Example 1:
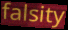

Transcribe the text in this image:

falsity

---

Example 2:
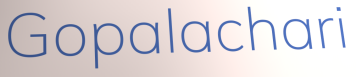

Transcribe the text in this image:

Gopalachari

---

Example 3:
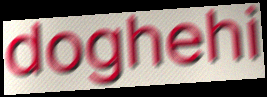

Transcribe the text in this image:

doghehi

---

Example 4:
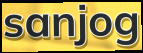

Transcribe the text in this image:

sanjog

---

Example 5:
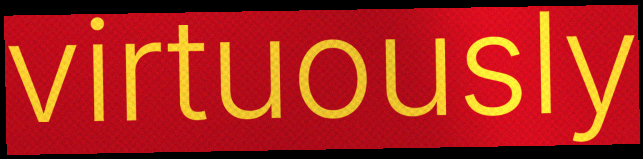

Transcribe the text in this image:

virtuously